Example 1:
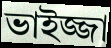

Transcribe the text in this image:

ভাইজ্জা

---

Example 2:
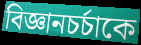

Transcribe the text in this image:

বিজ্ঞানচর্চাকে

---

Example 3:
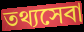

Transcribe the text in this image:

তথ্যসেবা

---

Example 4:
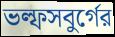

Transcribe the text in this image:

ভল্ফসবুর্গের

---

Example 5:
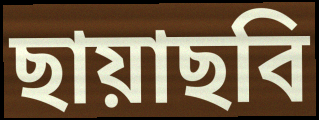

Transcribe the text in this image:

ছায়াছবি